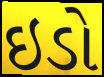
ઇડો